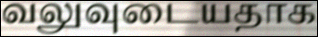
வலுவுடையதாக